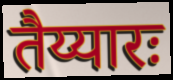
तैय्यारः